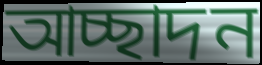
আচ্ছাদন